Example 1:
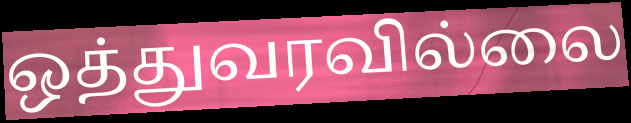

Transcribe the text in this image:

ஒத்துவரவில்லை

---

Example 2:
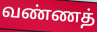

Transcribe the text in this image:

வண்ணத்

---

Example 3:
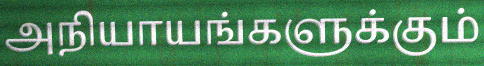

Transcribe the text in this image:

அநியாயங்களுக்கும்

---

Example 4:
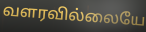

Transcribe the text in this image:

வளரவில்லையே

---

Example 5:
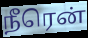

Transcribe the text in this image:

நீரென்